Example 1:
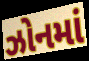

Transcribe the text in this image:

ઝોનમાં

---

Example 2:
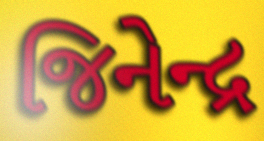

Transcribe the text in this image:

જિનેન્દ્ર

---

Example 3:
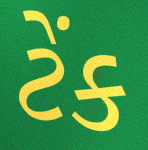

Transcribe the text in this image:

ટેંક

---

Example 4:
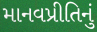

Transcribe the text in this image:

માનવપ્રીતિનું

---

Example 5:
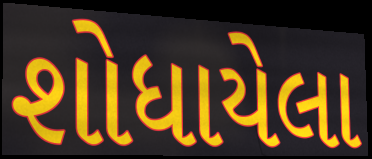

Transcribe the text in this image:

શોધાયેલા